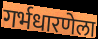
गर्भधारणेला